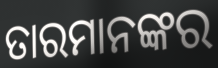
ତାରମାନଙ୍କର